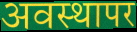
अवस्थापर